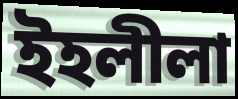
ইহলীলা